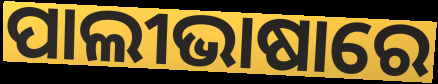
ପାଲୀଭାଷାରେ